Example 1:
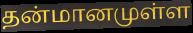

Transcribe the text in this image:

தன்மானமுள்ள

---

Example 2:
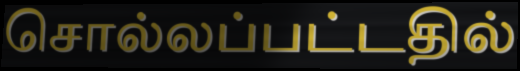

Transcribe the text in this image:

சொல்லப்பட்டதில்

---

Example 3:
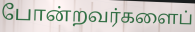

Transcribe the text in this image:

போன்றவர்களைப்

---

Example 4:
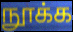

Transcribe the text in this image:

நூக்க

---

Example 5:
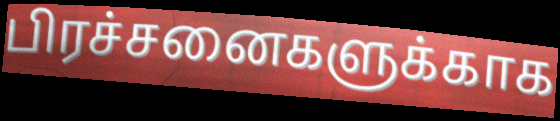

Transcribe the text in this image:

பிரச்சனைகளுக்காக